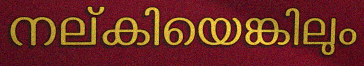
നല്‌കിയെങ്കിലും